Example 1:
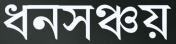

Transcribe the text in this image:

ধনসঞ্চয়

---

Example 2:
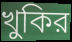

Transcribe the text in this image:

খুকির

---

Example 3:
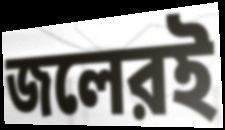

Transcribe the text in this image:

জলেরই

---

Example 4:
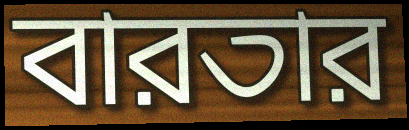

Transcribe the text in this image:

বারতার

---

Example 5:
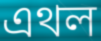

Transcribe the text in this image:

এথল